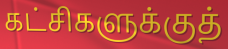
கட்சிகளுக்குத்